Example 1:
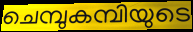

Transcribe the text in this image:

ചെമ്പുകമ്പിയുടെ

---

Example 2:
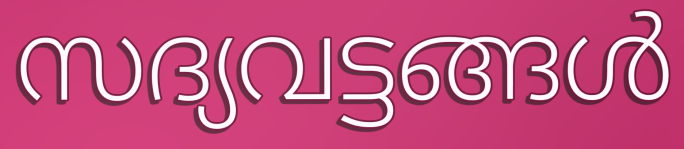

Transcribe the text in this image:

സദ്യവട്ടങ്ങൾ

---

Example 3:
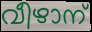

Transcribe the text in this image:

വീഴാന്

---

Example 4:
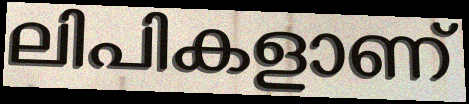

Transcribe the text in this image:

ലിപികളാണ്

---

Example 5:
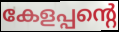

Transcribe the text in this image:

കേളപ്പന്റെ